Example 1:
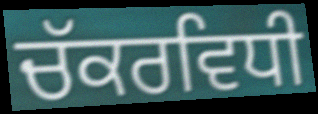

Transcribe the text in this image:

ਚੱਕਰਵਿਧੀ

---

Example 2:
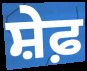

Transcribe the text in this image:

ਸ਼ੇਫ਼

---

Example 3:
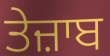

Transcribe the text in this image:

ਤੇਜ਼ਾਬ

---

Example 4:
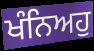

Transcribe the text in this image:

ਖੰਨਿਅਹੁ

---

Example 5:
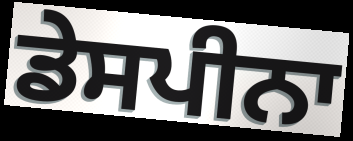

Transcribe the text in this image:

ਡੇਸਪੀਨਾ